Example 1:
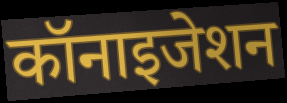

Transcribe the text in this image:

कॉनाइजेशन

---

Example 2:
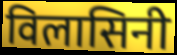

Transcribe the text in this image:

विलासिनी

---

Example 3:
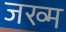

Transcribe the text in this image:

जख्म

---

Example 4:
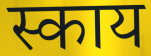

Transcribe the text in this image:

स्काय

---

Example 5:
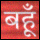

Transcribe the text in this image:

बहूँ